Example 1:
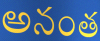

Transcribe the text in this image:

అనంత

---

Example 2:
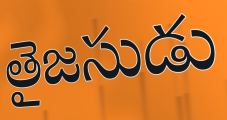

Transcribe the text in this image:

తైజసుడు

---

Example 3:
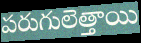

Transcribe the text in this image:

పరుగులెత్తాయి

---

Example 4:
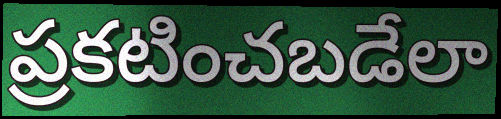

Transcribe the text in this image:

ప్రకటించబడేలా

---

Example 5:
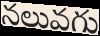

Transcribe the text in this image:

నలువగు